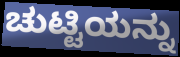
ಚುಟ್ಟಿಯನ್ನು